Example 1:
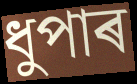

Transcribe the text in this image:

ধুপাৰ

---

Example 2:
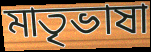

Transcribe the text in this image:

মাতৃভাষা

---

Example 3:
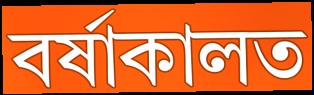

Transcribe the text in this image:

বৰ্ষাকালত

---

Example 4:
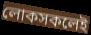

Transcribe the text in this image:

লোকসকলেই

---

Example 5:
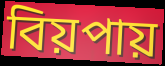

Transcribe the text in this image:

বিয়পায়